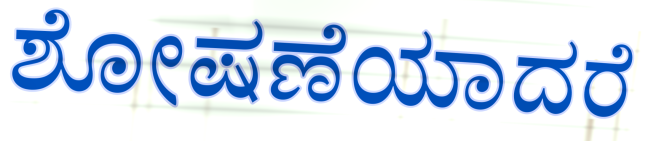
ಶೋಷಣೆಯಾದರೆ